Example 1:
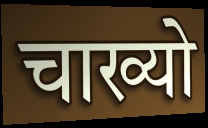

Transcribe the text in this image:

चाख्यो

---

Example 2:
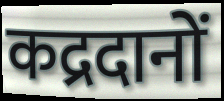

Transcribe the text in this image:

कद्रदानों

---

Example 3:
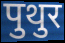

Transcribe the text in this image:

पुथुर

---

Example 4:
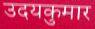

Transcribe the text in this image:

उदयकुमार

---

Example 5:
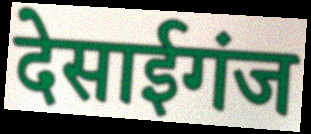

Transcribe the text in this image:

देसाईगंज